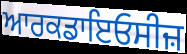
ਆਰਕਡਾਇਓਸੀਜ਼